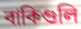
বাকিগুলি